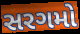
સરગમો